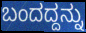
ಬಂದದ್ದನ್ನು